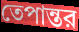
তেপান্তর